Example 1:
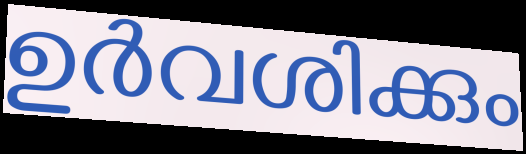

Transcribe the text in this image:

ഉർവശിക്കും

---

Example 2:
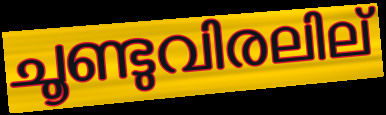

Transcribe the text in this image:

ചൂണ്ടുവിരലില്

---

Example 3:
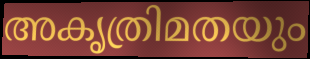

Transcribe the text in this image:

അകൃത്രിമതയും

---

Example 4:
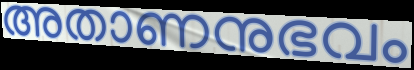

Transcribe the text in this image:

അതാണനുഭവം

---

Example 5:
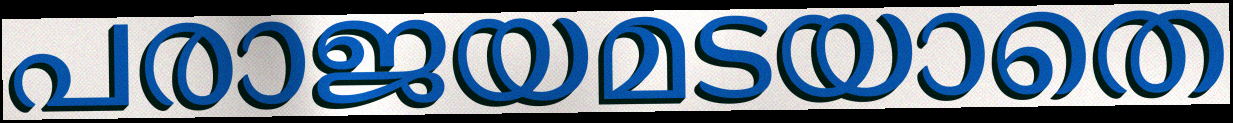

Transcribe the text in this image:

പരാജയമടയാതെ